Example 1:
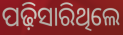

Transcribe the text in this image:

ପଢ଼ିସାରିଥିଲେ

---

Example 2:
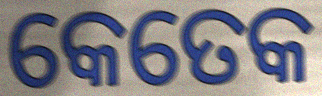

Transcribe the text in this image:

କେତେକ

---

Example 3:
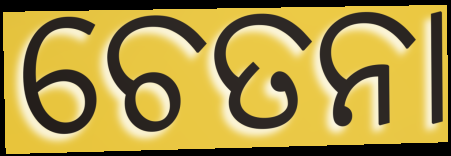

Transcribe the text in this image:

ଚେତନା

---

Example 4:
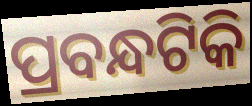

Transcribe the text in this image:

ପ୍ରବନ୍ଧଟିକି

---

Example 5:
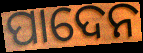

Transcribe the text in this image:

ପାଦେନ